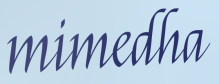
mimedha